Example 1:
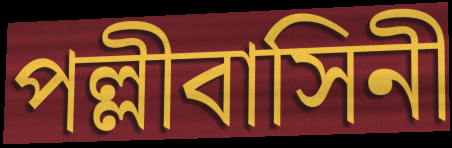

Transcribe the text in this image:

পল্লীবাসিনী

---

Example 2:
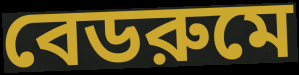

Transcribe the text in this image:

বেডরুমে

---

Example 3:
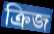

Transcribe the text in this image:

ক্রিজ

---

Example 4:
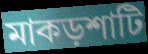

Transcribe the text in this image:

মাকড়শাটি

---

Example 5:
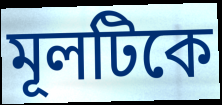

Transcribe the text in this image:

মূলটিকে